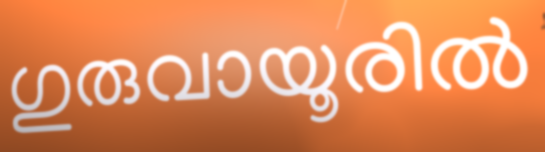
ഗുരുവായൂരിൽ